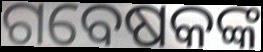
ଗବେଷକଙ୍କ